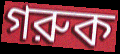
গরুক